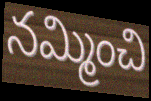
నమ్మించి